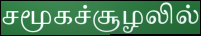
சமூகச்சூழலில்